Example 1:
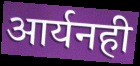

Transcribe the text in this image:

आर्यनही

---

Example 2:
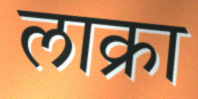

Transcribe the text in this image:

लाक्रा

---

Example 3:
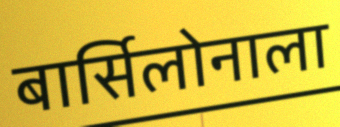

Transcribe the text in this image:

बार्सिलोनाला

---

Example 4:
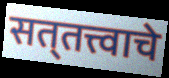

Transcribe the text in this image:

सत्‌तत्त्वाचे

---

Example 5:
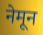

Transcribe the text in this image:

नेमून